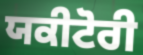
ਯਕੀਟੋਰੀ